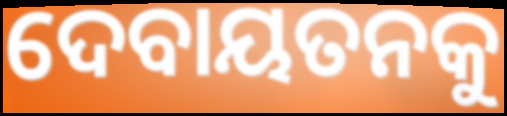
ଦେବାୟତନକୁ